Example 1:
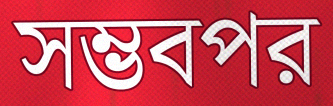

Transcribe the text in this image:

সম্ভবপর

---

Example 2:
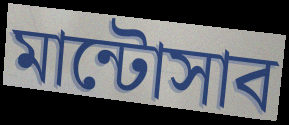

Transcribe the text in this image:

মান্টোসাব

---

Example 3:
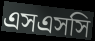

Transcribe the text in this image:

এসএসসি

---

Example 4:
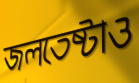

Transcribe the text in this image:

জলতেষ্টাও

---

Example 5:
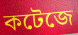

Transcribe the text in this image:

কটেজে